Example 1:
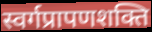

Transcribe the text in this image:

स्वर्गप्रापणशक्ति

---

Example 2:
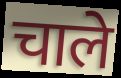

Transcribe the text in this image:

चाले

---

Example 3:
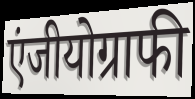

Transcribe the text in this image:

एंजीयोग्राफी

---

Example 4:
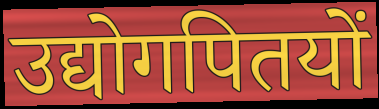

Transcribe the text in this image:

उद्योगपितयों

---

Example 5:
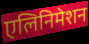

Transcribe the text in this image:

एलिनिमेशन